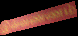
இவ்வண்ணம்